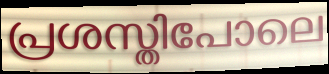
പ്രശസ്തിപോലെ